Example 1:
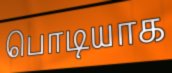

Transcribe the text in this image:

பொடியாக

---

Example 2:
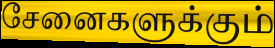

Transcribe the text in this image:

சேனைகளுக்கும்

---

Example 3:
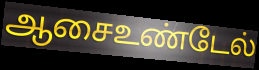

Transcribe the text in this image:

ஆசைஉண்டேல்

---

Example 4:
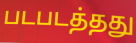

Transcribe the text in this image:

படபடத்தது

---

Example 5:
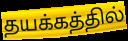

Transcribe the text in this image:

தயக்கத்தில்